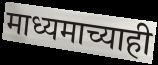
माध्यमाच्याही